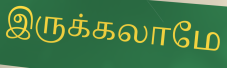
இருக்கலாமே